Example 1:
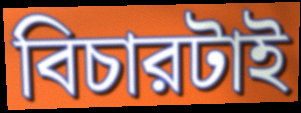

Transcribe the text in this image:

বিচারটাই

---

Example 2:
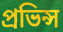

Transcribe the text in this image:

প্রভিন্স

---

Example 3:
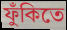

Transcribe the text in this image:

ফুঁকিতে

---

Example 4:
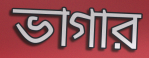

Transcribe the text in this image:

ভাগার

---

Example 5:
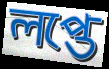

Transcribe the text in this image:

লপ্তে